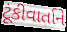
ટૂંકીવાર્તાને